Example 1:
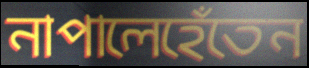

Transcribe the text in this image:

নাপালেহেঁতেন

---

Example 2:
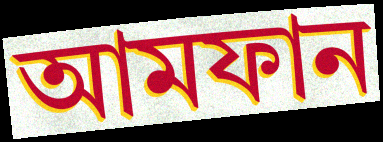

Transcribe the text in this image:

আমফান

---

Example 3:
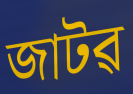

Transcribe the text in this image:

জাটৱ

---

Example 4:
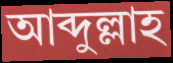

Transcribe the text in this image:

আব্দুল্লাহ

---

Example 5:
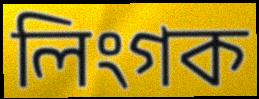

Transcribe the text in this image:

লিংগক